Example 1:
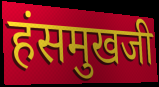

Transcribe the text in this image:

हंसमुखजी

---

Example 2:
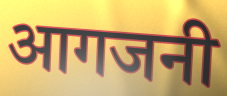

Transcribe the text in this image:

आगजनी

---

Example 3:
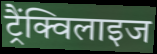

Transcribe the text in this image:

ट्रैंक्विलाइज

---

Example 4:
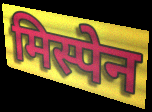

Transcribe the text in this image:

मिस्पेन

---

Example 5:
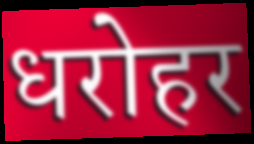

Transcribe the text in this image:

धरोहर